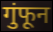
गुंफून